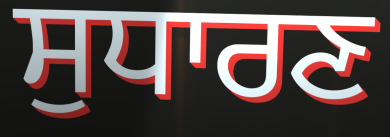
ਸੁਧਾਰਣ